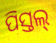
ପିସ୍ତଲ୍